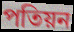
পতিয়ন